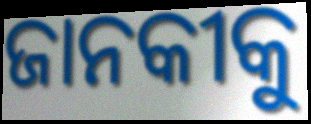
ଜାନକୀକୁ